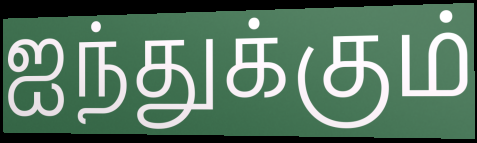
ஐந்துக்கும்